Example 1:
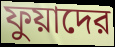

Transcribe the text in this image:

ফুয়াদের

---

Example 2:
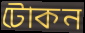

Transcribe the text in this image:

টোকন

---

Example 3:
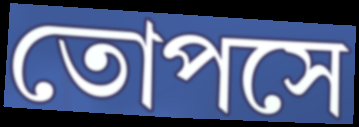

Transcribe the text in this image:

তোপসে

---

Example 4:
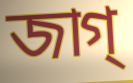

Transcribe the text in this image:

জাগ্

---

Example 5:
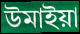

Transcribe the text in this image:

উমাইয়া